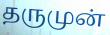
தருமுன்